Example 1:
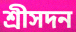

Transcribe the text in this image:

শ্রীসদন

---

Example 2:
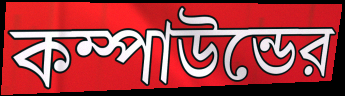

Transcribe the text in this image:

কম্পাউন্ডের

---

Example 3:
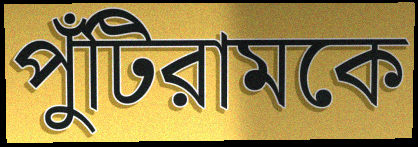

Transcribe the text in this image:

পুঁটিরামকে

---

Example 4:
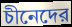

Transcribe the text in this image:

চীনেদের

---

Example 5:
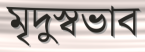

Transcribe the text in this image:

মৃদুস্বভাব